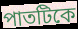
পাতটিকে